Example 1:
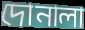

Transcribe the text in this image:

দোনালা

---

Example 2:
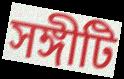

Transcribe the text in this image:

সঙ্গীটি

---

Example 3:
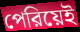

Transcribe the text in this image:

পেরিয়েই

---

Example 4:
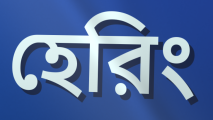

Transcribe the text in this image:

হেরিং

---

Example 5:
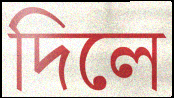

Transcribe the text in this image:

দিলে